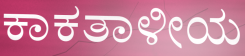
ಕಾಕತಾಳೀಯ